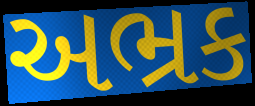
અભ્રક